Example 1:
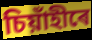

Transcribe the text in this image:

চিয়াঁহীৰে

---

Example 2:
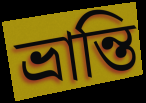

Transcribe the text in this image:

ভ্ৰান্তি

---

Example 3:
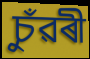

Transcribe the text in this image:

চুঁৱৰী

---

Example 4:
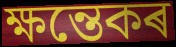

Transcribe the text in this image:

ক্ষন্তেকৰ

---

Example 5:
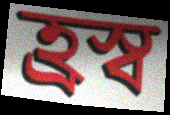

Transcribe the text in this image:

হ্ৰস্ব